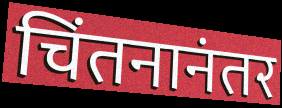
चिंतनानंतर